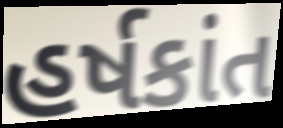
હર્ષકાંત